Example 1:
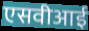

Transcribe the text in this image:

एसवीआई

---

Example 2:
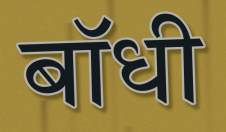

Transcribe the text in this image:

बॉधी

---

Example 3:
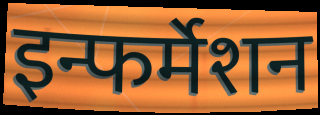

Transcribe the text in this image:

इन्फर्मेशन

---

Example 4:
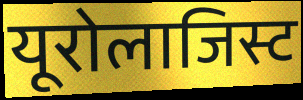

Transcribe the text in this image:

यूरोलाजिस्ट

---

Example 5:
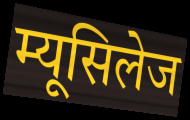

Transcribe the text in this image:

म्यूसिलेज